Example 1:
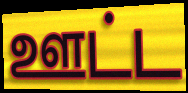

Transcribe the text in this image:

ஊட்ட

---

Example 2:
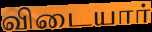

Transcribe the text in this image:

விடையார்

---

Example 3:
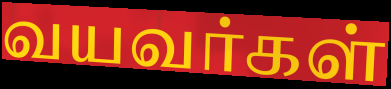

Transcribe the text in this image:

வயவர்கள்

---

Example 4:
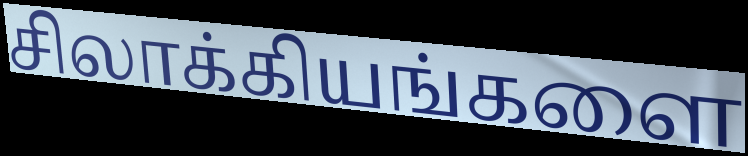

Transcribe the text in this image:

சிலாக்கியங்களை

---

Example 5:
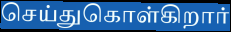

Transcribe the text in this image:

செய்துகொள்கிறார்